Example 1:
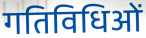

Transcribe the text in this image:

गतिविधिओं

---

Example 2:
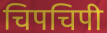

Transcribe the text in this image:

चिपचिपी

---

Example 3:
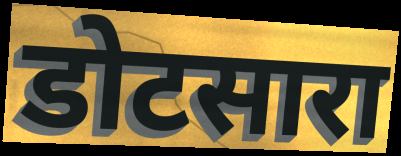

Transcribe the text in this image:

डोटसारा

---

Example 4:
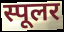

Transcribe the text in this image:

स्पूलर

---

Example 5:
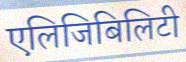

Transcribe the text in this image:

एलिजिबिलिटी